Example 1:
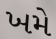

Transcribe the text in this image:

ખમે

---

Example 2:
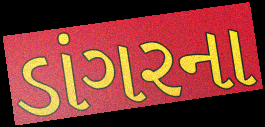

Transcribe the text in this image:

ડાંગરના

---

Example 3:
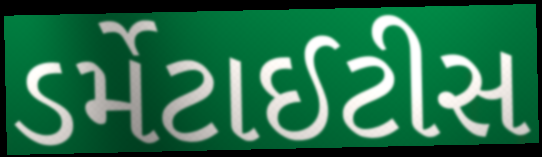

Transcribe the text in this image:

ડર્મેટાઈટીસ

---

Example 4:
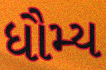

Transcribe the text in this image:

ધૌમ્ય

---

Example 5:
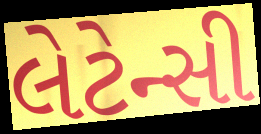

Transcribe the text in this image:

લેટેન્સી